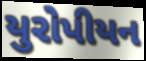
યુરોપીયન